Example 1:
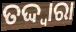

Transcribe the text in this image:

ତଦ୍ଦ୍ଵାରା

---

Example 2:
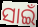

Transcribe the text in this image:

ସାଇଁ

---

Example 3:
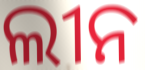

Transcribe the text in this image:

ଲୀନ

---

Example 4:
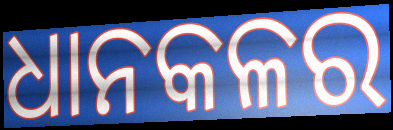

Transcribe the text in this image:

ଧାନକଳର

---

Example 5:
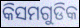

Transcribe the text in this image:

କିସମଗୁଡିକ